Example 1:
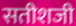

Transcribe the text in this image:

सतीशजी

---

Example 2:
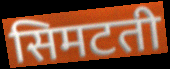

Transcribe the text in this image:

सिमटती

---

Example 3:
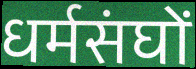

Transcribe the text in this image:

धर्मसंघों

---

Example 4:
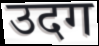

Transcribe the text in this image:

उदग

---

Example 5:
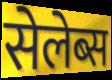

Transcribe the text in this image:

सेलेब्‍स